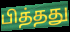
பித்தது